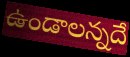
ఉండాలన్నదే